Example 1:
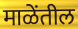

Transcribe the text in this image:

माळेंतील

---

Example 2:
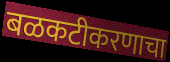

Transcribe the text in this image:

बळकटीकरणाचा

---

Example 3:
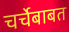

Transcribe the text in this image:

चर्चेबाबत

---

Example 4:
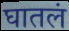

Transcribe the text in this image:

घातलं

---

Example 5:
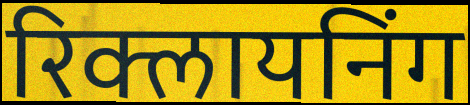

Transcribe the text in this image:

रिक्लायनिंग